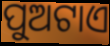
ପୁଅଟାଏ